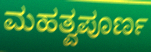
ಮಹತ್ವಪೂರ್ಣ